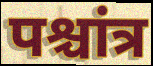
पश्चांत्र